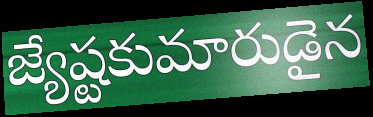
జ్యేష్టకుమారుడైన